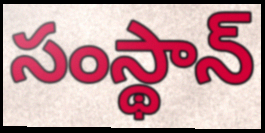
సంస్థాన్